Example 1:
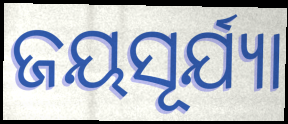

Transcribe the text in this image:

ଜୟସୂର୍ଯ୍ୟା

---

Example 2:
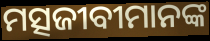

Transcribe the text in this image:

ମତ୍ସଜୀବୀମାନଙ୍କ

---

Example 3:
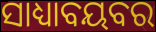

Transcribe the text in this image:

ସାଧ୍ୟାବୟବର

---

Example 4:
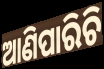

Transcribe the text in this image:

ଆଣିପାରିଚି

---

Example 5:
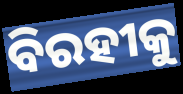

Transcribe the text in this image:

ବିରହୀକୁ